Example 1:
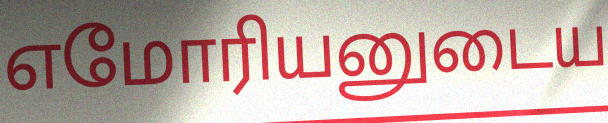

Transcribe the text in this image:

எமோரியனுடைய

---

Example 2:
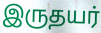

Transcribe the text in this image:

இருதயர்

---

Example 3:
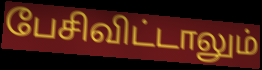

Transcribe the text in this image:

பேசிவிட்டாலும்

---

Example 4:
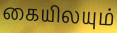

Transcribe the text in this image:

கையிலயும்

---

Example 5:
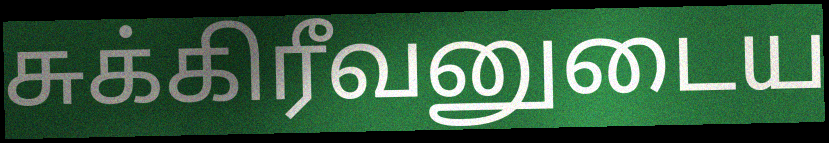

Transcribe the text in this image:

சுக்கிரீவனுடைய